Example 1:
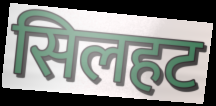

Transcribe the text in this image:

सिलहट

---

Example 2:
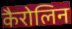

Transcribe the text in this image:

कैरोलिन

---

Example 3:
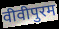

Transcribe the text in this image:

वीवीपुरम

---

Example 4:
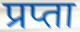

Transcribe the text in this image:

प्रप्ता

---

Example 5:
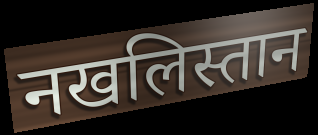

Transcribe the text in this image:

नखलिस्तान